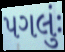
પગલુંઃ